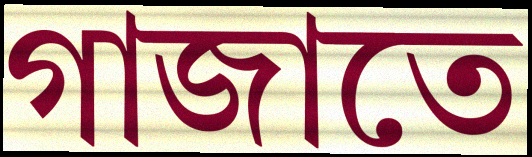
গাজাতে